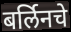
बर्लिनचे